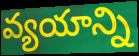
వ్యయాన్ని